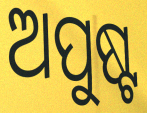
ଅପୁଷ୍ଟ